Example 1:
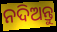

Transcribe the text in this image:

ନଦିଅନ୍ତୁ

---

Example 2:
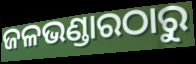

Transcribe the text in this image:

ଜଳଭଣ୍ଡାରଠାରୁ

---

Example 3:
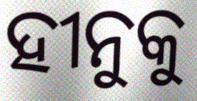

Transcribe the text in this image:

ହୀନୁକୁ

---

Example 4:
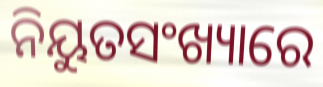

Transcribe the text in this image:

ନିୟୁତସଂଖ୍ୟାରେ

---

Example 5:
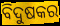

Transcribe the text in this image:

ବିଦୁଷକର